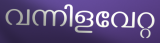
വന്നിളവേറ്റ